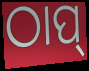
ଠାପ୍